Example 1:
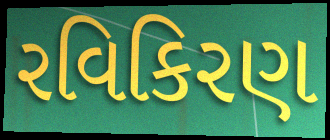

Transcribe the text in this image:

રવિકિરણ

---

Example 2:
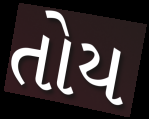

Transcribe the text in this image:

તોય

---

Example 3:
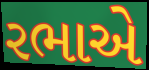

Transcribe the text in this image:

રભાએ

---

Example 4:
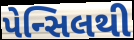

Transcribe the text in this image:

પેન્સિલથી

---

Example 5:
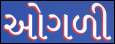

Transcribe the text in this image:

ઓગળી